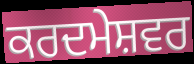
ਕਰਦਮੇਸ਼ਵਰ